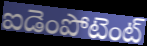
ఐడెంపోటెంట్